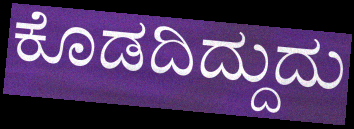
ಕೊಡದಿದ್ದುದು